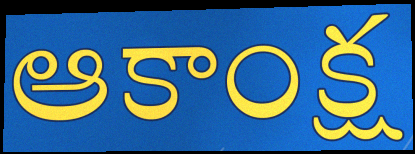
ఆకాంక్ష